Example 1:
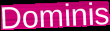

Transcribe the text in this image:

Dominis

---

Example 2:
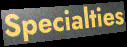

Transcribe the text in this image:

Specialties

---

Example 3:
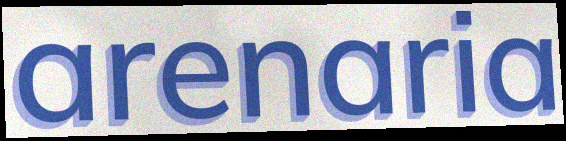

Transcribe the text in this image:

arenaria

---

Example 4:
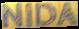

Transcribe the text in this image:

NIDA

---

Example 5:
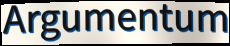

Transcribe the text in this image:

Argumentum